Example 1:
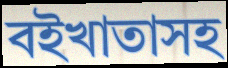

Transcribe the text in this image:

বইখাতাসহ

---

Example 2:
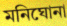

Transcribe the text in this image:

মনিঘোনা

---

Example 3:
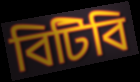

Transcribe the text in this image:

বিটিবি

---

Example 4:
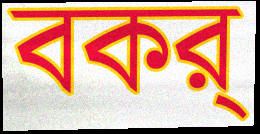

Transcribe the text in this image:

বকর্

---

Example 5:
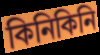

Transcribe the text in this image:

কিনিকিনি